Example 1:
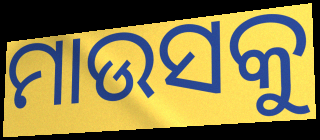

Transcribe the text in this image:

ମାଉସକୁ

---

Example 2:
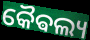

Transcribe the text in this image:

କୈଵଲ୍ୟ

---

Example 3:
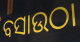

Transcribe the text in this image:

ବସାଉଠା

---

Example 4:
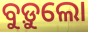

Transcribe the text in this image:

ବୁଡ଼ୁଲୋ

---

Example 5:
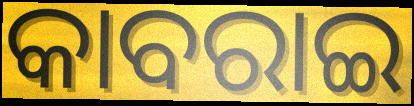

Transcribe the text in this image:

କାବରାଇ